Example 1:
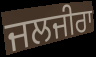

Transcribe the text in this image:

ਜਲਜੀਰਾ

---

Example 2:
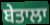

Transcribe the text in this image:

ਬੇਤਾਲਾ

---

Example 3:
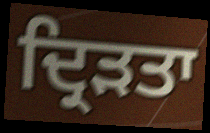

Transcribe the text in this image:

ਦ੍ਰਿੜਤਾ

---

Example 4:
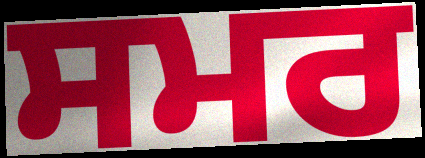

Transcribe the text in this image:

ਸਮਰ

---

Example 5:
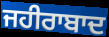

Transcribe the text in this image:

ਜਹੀਰਾਬਾਦ